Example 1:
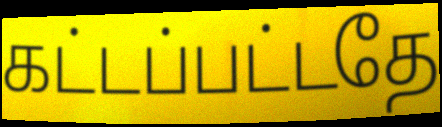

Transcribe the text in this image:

கட்டப்பட்டதே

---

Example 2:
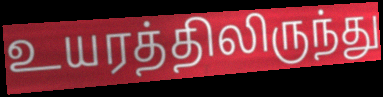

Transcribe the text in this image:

உயரத்திலிருந்து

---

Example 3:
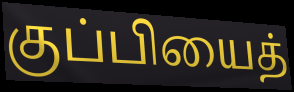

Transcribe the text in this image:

குப்பியைத்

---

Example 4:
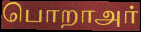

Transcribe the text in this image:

பொறாஅர்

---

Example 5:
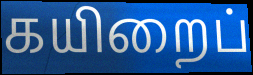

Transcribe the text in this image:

கயிறைப்